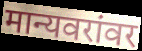
मान्यवरांवर